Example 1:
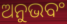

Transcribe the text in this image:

ଅନୁଭବଂ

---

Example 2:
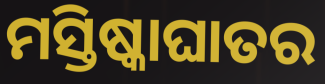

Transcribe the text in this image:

ମସ୍ତିଷ୍କାଘାତର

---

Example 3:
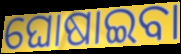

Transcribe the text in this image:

ଘୋଷାଇବା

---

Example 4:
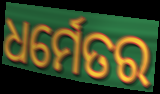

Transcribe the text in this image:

ଧର୍ମେତର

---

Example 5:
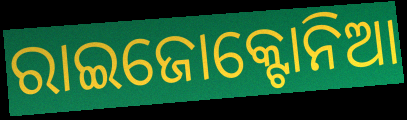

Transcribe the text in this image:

ରାଇଜୋକ୍ଟୋନିଆ